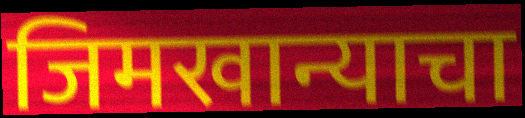
जिमखान्याचा